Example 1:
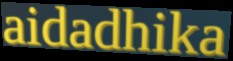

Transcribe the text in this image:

aidadhika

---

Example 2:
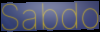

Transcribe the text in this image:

Sabdo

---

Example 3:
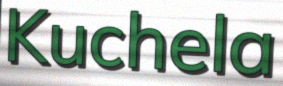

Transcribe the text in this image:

Kuchela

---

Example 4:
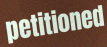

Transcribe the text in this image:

petitioned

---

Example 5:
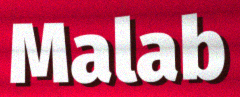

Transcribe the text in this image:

Malab